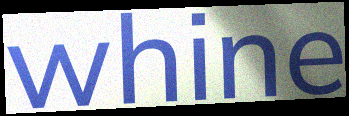
whine